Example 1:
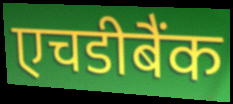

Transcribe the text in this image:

एचडीबैंक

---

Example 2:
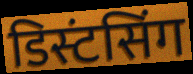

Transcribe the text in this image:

डिस्टंसिंग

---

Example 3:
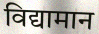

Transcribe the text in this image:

विद्यामान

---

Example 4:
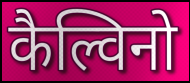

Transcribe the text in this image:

कैल्विनो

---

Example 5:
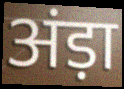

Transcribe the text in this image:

अंड़ा